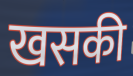
खसकी